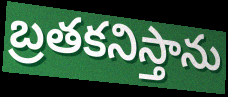
బ్రతకనిస్తాను